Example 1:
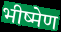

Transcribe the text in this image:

भीष्मेण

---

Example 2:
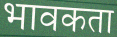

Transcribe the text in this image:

भावकता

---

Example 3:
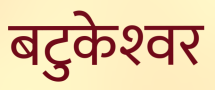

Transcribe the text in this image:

बटुकेश्‍वर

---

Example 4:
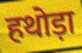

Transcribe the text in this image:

हथोड़ा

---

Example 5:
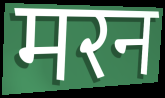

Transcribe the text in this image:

मरन